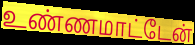
உண்ணமாட்டேன்